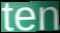
ten